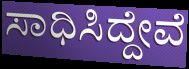
ಸಾಧಿಸಿದ್ದೇವೆ